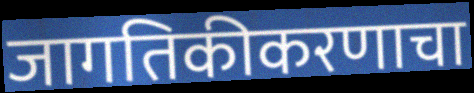
जागतिकीकरणाचा